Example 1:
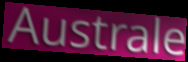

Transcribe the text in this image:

Australe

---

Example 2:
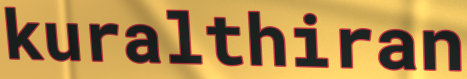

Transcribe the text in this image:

kuralthiran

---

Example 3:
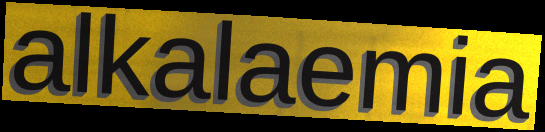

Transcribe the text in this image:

alkalaemia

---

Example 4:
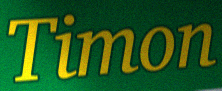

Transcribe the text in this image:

Timon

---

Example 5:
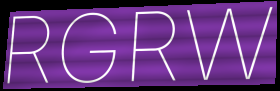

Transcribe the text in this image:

RGRW